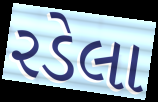
રડેલા